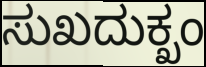
ಸುಖದುಕ್ಖಂ